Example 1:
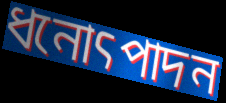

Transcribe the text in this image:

ধনোৎপাদন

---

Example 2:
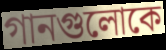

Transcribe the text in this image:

গানগুলোকে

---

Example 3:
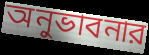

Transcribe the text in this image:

অনুভাবনার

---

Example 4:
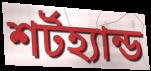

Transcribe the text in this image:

শর্টহ্যান্ড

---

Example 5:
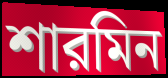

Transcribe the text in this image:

শারমিন